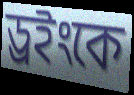
ড্রইংকে